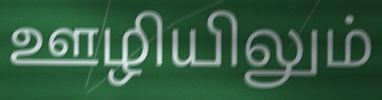
ஊழியிலும்